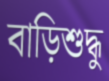
বাড়িশুদ্ধু